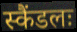
स्कैंडलः